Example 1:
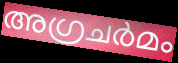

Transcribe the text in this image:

അഗ്രചർമം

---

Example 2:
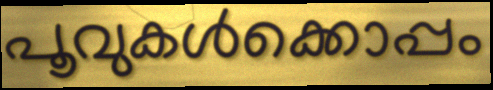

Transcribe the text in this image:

പൂവുകൾക്കൊപ്പം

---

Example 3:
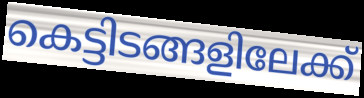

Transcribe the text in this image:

കെട്ടിടങ്ങളിലേക്ക്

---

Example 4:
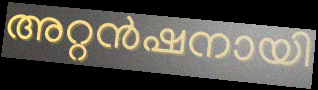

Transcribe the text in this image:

അറ്റൻഷനായി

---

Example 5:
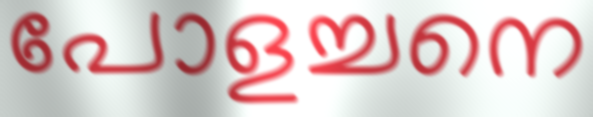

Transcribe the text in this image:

പോളച്ചനെ